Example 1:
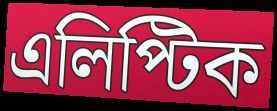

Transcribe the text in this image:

এলিপ্টিক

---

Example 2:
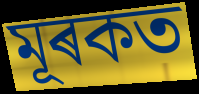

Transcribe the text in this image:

মূৰকত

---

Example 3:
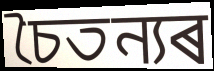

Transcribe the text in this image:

চৈতন্যৰ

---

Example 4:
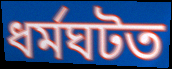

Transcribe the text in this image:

ধৰ্মঘটত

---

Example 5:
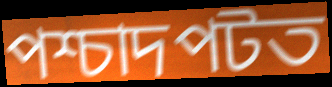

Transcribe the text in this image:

পশ্চাদপটত